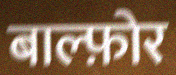
बाल्फ़ोर